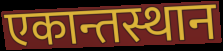
एकान्तस्थान